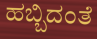
ಹಬ್ಬಿದಂತೆ